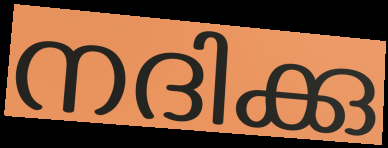
നദിക്കു